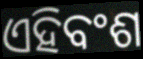
ଏହିବଂଶ